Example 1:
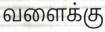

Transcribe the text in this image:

வளைக்கு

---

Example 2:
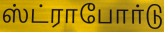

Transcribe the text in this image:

ஸ்ட்ராபோர்டு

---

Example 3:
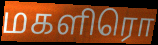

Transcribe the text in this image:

மகளிரொ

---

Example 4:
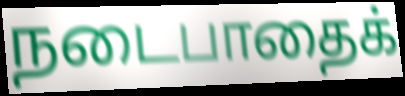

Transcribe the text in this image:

நடைபாதைக்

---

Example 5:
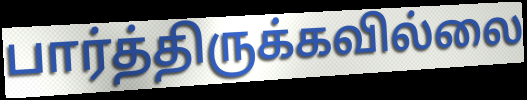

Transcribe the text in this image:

பார்த்திருக்கவில்லை